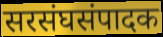
सरसंघसंपादक